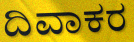
ದಿವಾಕರ